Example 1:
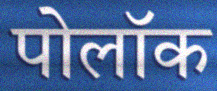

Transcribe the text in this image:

पोलॉक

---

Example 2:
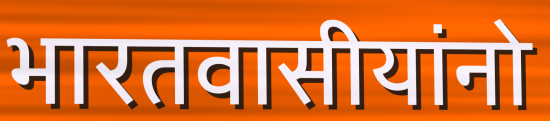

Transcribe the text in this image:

भारतवासीयांनो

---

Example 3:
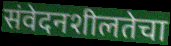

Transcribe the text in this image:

संवेदनशीलतेचा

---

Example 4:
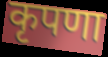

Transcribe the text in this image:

कृपणा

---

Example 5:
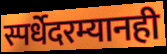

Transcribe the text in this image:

स्पर्धेदरम्यानही